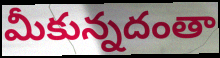
మీకున్నదంతా